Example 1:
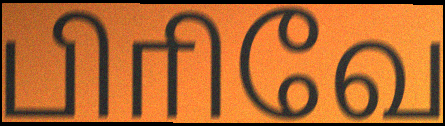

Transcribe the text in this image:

பிரிவே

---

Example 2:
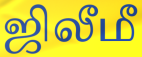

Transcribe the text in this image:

ஜிலீமீ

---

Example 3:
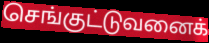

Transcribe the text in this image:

செங்குட்டுவனைக்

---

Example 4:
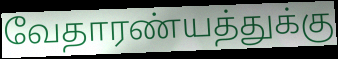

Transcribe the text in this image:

வேதாரண்யத்துக்கு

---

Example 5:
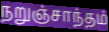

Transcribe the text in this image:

நறுஞ்சாந்தம்